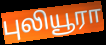
புலியூரா